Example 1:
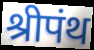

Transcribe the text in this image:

श्रीपंथ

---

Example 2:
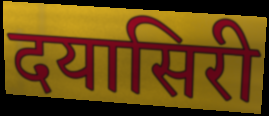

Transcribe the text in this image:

दयासिरी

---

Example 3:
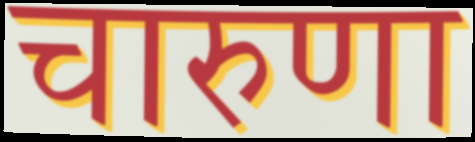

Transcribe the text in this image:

चारुणा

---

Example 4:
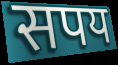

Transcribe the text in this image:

सपय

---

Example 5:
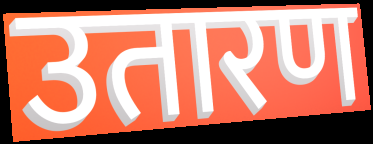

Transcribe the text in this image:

उतारण